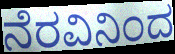
ನೆರವಿನಿಂದ